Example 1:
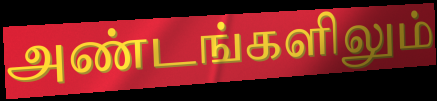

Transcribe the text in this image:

அண்டங்களிலும்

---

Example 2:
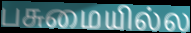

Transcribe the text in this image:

பசுமையில்ல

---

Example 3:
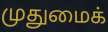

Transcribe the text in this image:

முதுமைக்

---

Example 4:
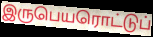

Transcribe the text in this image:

இருபெயரொட்டுப்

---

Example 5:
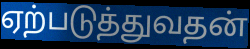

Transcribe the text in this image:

ஏற்படுத்துவதன்